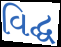
વિદ્ઘ